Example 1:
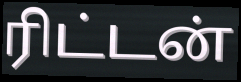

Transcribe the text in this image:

ரிட்டன்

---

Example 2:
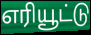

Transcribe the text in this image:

எரியூட்டு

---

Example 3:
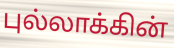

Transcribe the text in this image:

புல்லாக்கின்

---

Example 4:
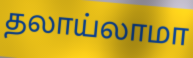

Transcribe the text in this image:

தலாய்லாமா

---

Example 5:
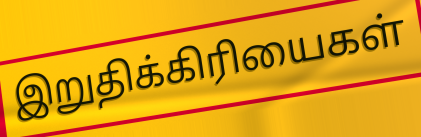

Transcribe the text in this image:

இறுதிக்கிரியைகள்